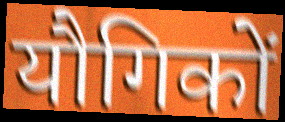
यौगिकों